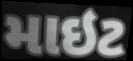
માઇટ